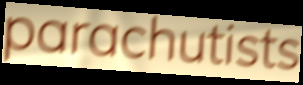
parachutists